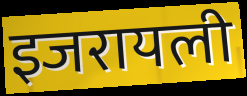
इजरायली